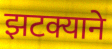
झटक्याने